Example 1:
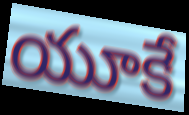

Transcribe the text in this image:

యూకే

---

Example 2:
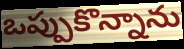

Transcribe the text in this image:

ఒప్పుకొన్నాను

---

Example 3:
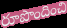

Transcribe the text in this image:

రూపొందించి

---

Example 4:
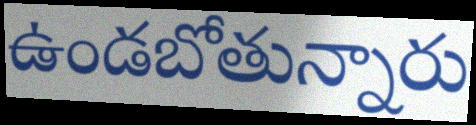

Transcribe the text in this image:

ఉండబోతున్నారు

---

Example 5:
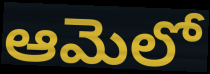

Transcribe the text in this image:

ఆమెలో